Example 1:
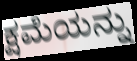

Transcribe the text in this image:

ಕ್ಷಮೆಯನ್ನು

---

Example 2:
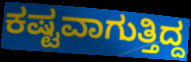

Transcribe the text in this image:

ಕಷ್ಟವಾಗುತ್ತಿದ್ದ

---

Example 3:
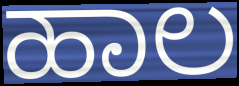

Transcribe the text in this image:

ಹಾಲ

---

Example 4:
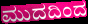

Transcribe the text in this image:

ಮುದದಿಂದ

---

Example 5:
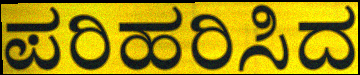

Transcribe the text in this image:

ಪರಿಹರಿಸಿದ